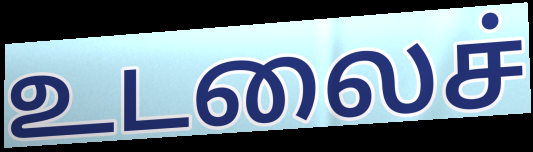
உடலைச்